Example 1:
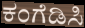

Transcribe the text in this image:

ಕಂಗೆಡಿಸಿ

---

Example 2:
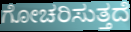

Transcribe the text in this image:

ಗೋಚರಿಸುತ್ತದೆ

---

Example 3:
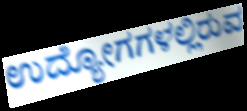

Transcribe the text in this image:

ಉದ್ಯೋಗಗಳಲ್ಲಿರುವ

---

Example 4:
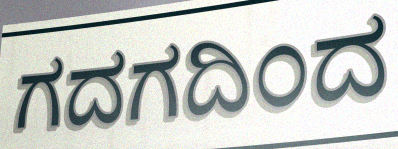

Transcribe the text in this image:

ಗದಗದಿಂದ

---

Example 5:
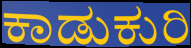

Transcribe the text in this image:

ಕಾಡುಕುರಿ